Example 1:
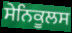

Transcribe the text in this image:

ਸੇਨਿਕੂਲਸ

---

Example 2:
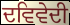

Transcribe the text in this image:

ਦਵਿਵੇਦੀ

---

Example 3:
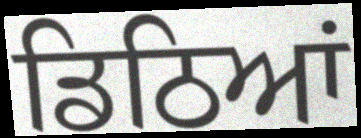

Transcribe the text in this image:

ਡਿਠਿਆਂ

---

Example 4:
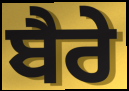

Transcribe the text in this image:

ਬੈਰੇ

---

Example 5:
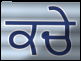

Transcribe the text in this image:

ਕਚੇ